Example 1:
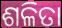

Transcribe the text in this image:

ଶଳିତା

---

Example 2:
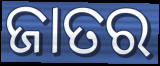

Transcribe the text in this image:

ଜାତର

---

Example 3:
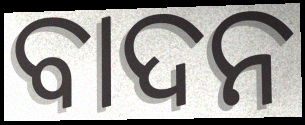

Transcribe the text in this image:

ବାଦନ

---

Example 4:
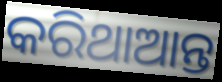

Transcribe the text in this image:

କରିଥାଆନ୍ତ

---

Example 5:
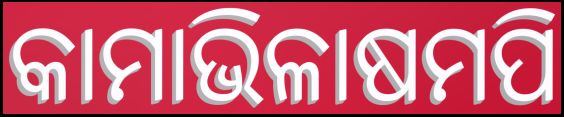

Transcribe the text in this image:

କାମାଭିଳାଷମପି